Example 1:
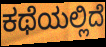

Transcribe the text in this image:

ಕಥೆಯಲ್ಲಿದೆ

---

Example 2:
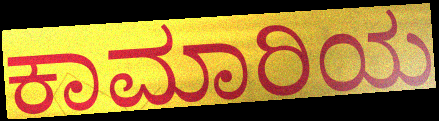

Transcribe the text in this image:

ಕಾಮಾರಿಯ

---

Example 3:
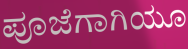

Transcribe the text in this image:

ಪೂಜೆಗಾಗಿಯೂ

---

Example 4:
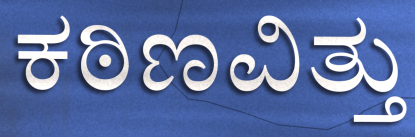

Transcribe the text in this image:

ಕಠಿಣವಿತ್ತು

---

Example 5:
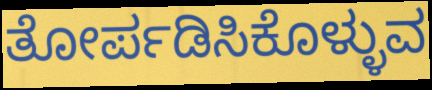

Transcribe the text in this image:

ತೋರ್ಪಡಿಸಿಕೊಳ್ಳುವ